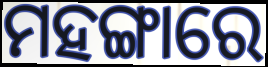
ମହଙ୍ଗାରେ